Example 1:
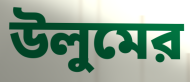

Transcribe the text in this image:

উলুমের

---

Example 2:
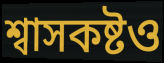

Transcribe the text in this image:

শ্বাসকষ্টও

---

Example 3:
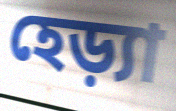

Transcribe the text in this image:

হেড়্যা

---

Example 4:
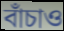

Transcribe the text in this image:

বাঁচাও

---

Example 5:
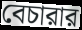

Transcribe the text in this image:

বেচারার